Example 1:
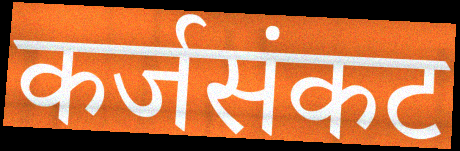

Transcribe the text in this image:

कर्जसंकट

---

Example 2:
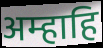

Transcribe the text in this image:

अम्हाहि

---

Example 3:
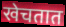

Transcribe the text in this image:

खेचतात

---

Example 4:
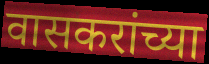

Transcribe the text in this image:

वासकरांच्या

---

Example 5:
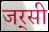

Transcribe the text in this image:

जर्सी